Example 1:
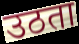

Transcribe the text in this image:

उठता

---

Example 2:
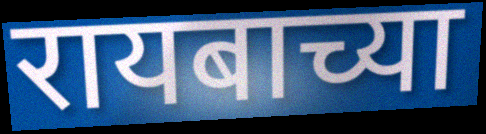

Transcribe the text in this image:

रायबाच्या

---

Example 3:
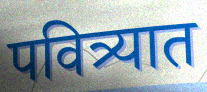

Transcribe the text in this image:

पवित्र्यात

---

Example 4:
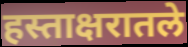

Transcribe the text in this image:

हस्ताक्षरातले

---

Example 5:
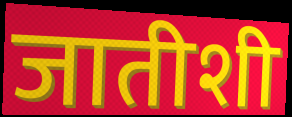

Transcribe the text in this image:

जातीशी